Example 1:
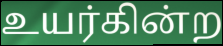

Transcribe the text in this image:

உயர்கின்ற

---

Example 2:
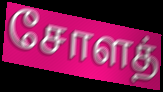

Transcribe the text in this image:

சோளத்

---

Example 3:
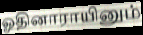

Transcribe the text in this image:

ஓதினாராயினும்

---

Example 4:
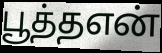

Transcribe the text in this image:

பூத்தஎன்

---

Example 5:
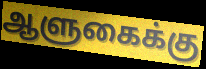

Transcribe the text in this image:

ஆளுகைக்கு